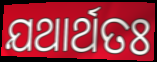
ଯଥାର୍ଥତଃ